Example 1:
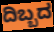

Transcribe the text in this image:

ದಿಬ್ಬದ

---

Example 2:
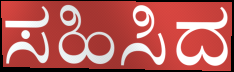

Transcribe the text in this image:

ಸಹಿಸಿದ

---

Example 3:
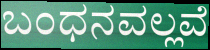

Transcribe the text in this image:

ಬಂಧನವಲ್ಲವೆ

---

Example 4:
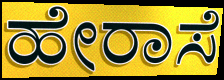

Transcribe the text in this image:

ಹೇರಾಸೆ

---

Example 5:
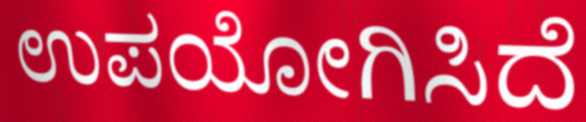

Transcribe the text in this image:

ಉಪಯೋಗಿಸಿದೆ